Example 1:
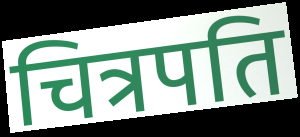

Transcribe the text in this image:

चित्रपति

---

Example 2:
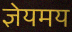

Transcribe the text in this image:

ज्ञेयमय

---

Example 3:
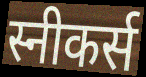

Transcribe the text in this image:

स्नीकर्स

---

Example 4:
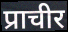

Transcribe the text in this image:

प्राचीर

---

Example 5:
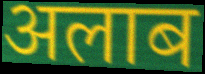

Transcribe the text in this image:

अलाब